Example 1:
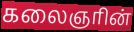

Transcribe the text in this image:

கலைஞரின்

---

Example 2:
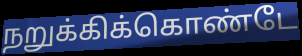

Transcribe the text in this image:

நறுக்கிக்கொண்டே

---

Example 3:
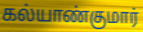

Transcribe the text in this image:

கல்யாண்குமார்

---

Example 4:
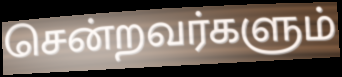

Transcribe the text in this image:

சென்றவர்களும்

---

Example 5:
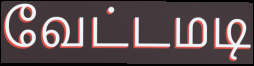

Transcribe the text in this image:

வேட்டமடி